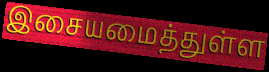
இசையமைத்துள்ள